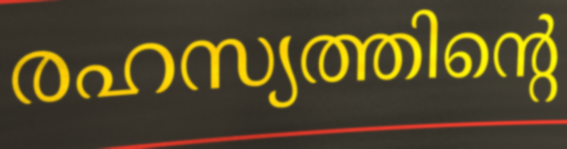
രഹസ്യത്തിന്റെ